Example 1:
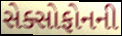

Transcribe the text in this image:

સેક્સોફોનની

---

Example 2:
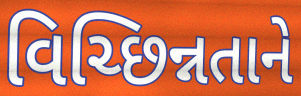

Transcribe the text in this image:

વિચ્છિન્નતાને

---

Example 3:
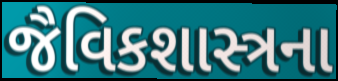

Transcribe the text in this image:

જૈવિકશાસ્ત્રના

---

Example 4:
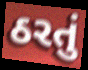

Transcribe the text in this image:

ઠરતું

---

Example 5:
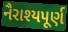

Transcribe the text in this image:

નૈરાશ્યપૂર્ણ